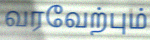
வரவேற்பும்